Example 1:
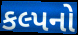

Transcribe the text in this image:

કલ્પનો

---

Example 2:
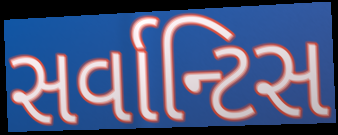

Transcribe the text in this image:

સર્વાન્ટિસ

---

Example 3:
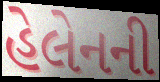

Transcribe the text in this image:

હેલેનની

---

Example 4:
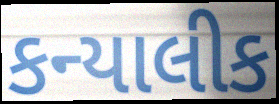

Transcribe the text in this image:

કન્યાલીક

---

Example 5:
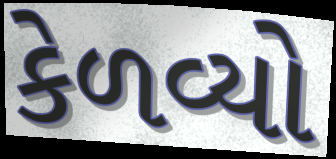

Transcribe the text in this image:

કેળવ્યો